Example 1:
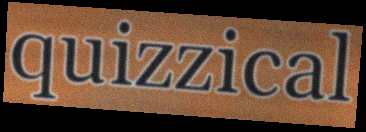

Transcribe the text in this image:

quizzical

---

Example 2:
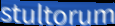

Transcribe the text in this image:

stultorum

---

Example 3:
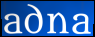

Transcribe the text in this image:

adna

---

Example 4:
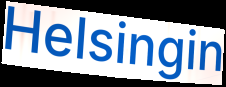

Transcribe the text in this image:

Helsingin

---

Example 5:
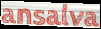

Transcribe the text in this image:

ansalva